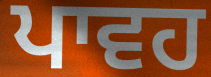
ਪਾਵਹ